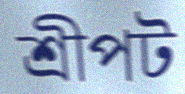
শ্রীপট